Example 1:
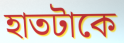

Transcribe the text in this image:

হাতটাকে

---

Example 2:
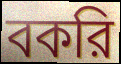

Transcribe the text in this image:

বকরি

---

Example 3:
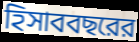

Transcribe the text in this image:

হিসাববছরের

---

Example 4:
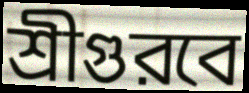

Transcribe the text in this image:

শ্রীগুরবে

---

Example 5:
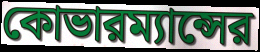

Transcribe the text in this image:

কোভারম্যান্সের